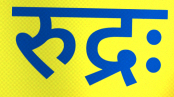
रुद्रः